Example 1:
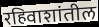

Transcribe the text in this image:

रहिवाशांतील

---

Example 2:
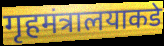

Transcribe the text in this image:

गृहमंत्रालयाकडे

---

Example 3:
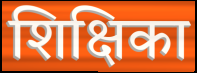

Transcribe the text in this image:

शिक्षिका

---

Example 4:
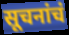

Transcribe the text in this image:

सूचनांचं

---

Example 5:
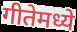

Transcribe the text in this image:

गीतेमध्ये